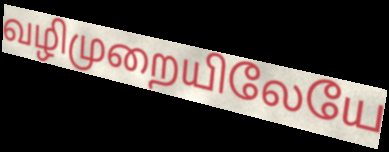
வழிமுறையிலேயே